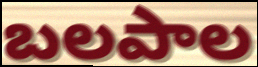
బలపాల